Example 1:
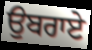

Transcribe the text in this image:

ਉਬਰਾਏ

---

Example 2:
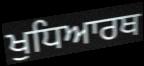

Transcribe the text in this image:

ਖੁਧਿਆਰਥ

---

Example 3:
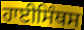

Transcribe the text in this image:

ਹਾਈਸਿੰਥਸ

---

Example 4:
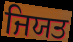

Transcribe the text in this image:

ਜਿਯਤ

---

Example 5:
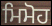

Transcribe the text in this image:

ਮਿਮੋਹ